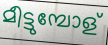
മീട്ടുമ്പോള്